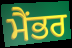
ਮੈਂਭਰ